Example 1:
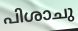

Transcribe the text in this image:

പിശാചു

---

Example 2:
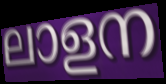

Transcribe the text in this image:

ലാളന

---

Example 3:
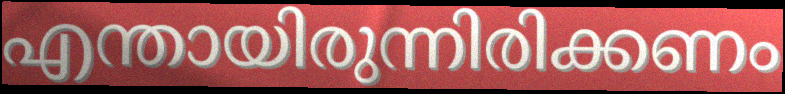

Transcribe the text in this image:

എന്തായിരുന്നിരിക്കണം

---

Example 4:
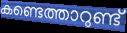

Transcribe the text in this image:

കണ്ടെത്താറുണ്ട്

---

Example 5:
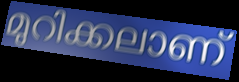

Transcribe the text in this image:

മുറിക്കലാണ്